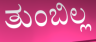
ತುಂಬಿಲ್ಲ